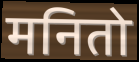
मनितो